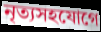
নৃত্যসহযোগে